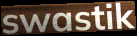
swastik